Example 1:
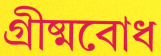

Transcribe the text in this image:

গ্রীষ্মবোধ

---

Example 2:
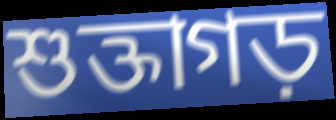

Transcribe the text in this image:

শুক্তাগড়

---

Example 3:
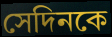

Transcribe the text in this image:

সেদিনকে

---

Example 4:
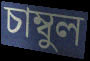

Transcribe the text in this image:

চাম্বুল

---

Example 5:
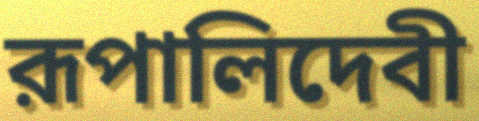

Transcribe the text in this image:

রূপালিদেবী